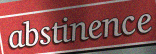
abstinence